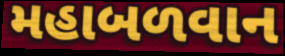
મહાબળવાન